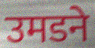
उमडने